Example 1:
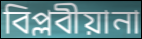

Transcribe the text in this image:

বিপ্লবীয়ানা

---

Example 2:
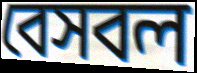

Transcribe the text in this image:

বেসবল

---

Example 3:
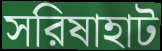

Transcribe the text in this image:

সরিষাহাট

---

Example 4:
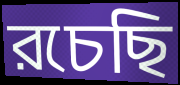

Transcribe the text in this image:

রচেছি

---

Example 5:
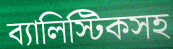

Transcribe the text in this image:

ব্যালিস্টিকসহ